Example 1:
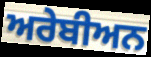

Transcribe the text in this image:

ਅਰੇਬੀਅਨ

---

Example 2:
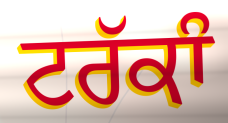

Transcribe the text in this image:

ਟਰੱਕਾੰ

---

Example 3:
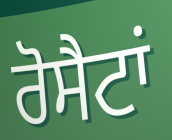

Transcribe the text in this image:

ਰੋਸੈਟਾਂ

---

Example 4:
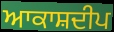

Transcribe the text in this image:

ਆਕਾਸ਼ਦੀਪ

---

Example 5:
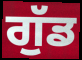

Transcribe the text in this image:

ਗੁੱਡ